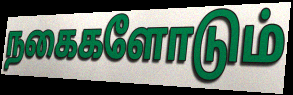
நகைகளோடும்